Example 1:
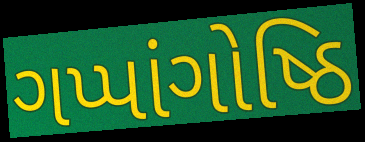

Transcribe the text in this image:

ગપ્પાંગોષ્ઠિ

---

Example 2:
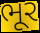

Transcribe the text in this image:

ભૂર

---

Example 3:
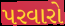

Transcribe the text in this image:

પરવારો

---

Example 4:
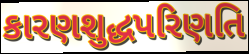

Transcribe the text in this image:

કારણશુદ્ધપરિણતિ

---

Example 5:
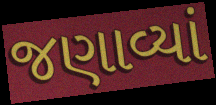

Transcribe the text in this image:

જણાવ્યાં